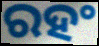
ରହଂ